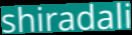
shiradali